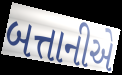
બત્તાનીએ